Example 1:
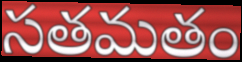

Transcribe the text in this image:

సతమతం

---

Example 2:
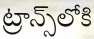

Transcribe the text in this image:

ట్రాన్స్‌లోకి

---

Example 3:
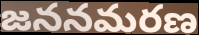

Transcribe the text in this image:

జననమరణ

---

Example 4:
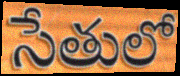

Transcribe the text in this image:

సేతులో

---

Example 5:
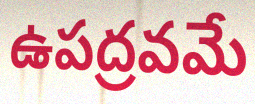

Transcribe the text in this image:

ఉపద్రవమే